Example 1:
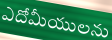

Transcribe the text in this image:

ఎదోమీయులను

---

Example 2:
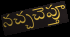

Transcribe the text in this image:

నచ్చచెప్తూ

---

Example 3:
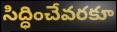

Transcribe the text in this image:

సిద్ధించేవరకూ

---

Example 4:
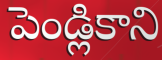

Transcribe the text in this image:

పెండ్లికాని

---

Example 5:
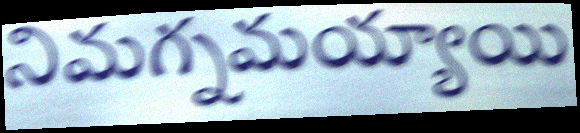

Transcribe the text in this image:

నిమగ్నమయ్యాయి